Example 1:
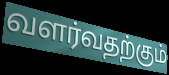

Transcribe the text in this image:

வளர்வதற்கும்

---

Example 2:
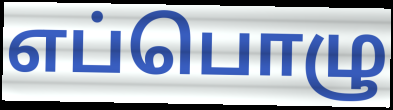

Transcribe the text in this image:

எப்பொழு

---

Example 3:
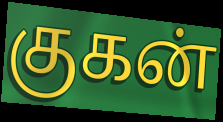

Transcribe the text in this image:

குகன்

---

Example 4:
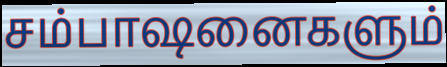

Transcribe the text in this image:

சம்பாஷனைகளும்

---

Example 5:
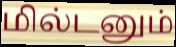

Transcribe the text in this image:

மில்டனும்